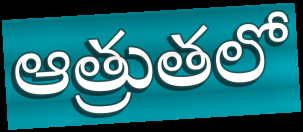
ఆత్రుతలో